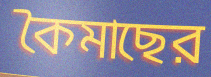
কৈমাছের